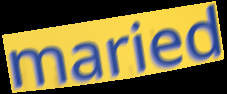
maried